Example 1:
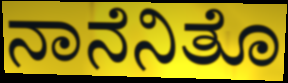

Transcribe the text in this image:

ನಾನೆನಿತೊ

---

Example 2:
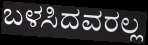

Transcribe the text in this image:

ಬಳಸಿದವರಲ್ಲ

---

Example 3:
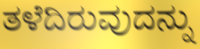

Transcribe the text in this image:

ತಳೆದಿರುವುದನ್ನು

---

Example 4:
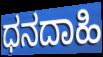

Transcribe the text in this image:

ಧನದಾಹಿ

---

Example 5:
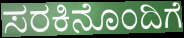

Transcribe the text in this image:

ಸರಕಿನೊಂದಿಗೆ